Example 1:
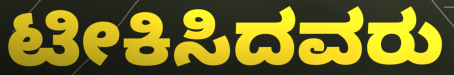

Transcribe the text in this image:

ಟೀಕಿಸಿದವರು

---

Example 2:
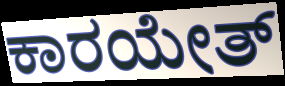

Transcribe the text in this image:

ಕಾರಯೇತ್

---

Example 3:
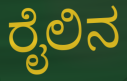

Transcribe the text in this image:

ರೈಲಿನ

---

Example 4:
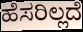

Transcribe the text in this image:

ಹೆಸರಿಲ್ಲದೆ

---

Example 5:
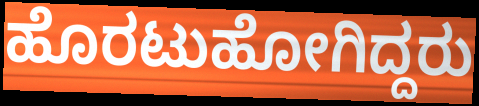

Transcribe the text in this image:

ಹೊರಟುಹೋಗಿದ್ದರು